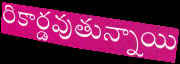
రికార్డవుతున్నాయి